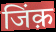
जिंक़